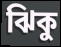
ঝিকু